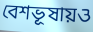
বেশভূষায়ও